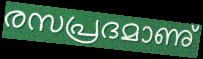
രസപ്രദമാണു്